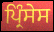
ਪ੍ਰਿੰਸੇਸ